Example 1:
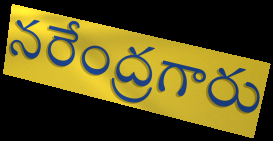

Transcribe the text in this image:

నరేంద్రగారు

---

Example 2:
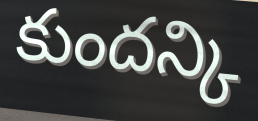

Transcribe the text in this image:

కుందన్కి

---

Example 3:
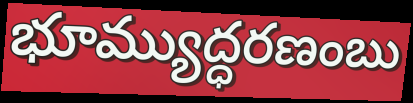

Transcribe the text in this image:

భూమ్యుద్ధరణంబు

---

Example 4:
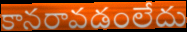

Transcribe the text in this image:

కానరావడంలేదు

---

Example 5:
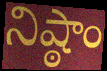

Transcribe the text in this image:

నిష్ఠాం